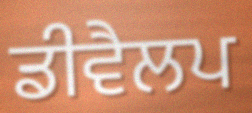
ਡੀਵੈਲਪ